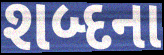
શબ્દના